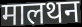
मालथन